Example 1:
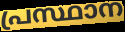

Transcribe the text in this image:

പ്രസ്ഥാന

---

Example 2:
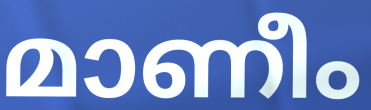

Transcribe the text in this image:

മാണീം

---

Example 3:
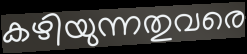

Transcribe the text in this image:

കഴിയുന്നതുവരെ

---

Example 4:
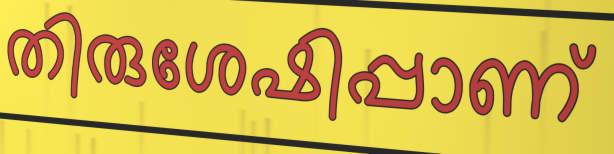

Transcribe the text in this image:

തിരുശേഷിപ്പാണ്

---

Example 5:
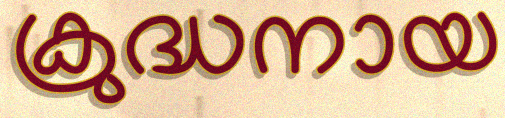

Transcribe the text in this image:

ക്രുദ്ധനായ